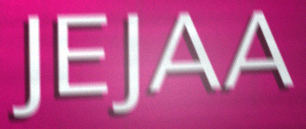
JEJAA